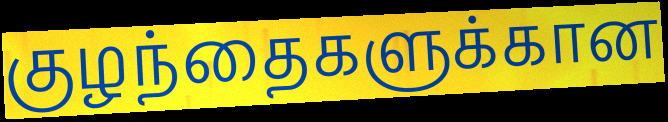
குழந்தைகளுக்கான